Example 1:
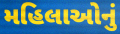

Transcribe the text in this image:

મહિલાઓનું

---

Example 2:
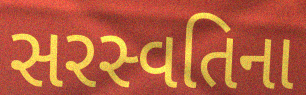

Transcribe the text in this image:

સરસ્વતિના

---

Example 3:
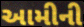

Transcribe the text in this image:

આમીની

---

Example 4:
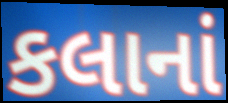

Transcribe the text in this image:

કલાનાં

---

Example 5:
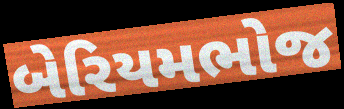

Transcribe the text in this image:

બેરિયમભોજ